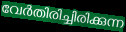
വേർതിരിച്ചിരിക്കുന്ന